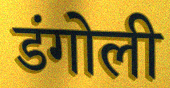
डंगोली